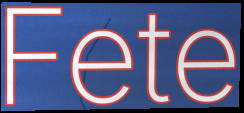
Fete